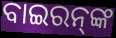
ବାଇରନ୍‌ଙ୍କ